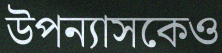
উপন্যাসকেও